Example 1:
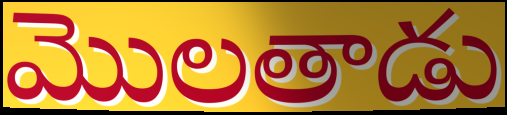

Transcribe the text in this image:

మొలతాడు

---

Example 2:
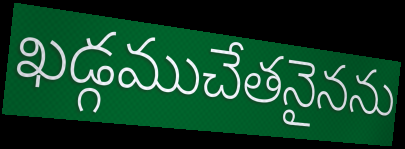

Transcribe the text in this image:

ఖడ్గముచేతనైనను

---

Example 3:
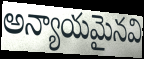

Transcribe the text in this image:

అన్యాయమైనవి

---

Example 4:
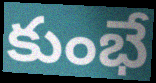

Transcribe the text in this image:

కుంభే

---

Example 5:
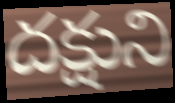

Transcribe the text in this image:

దక్షుని